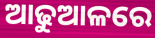
ଆଢୁଆଳରେ